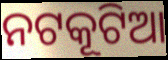
ନଟକୂଟିଆ